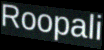
Roopali